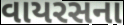
વાયરસના